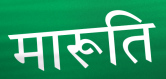
मारूति